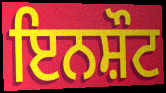
ਇਨਸ਼ੌਟ